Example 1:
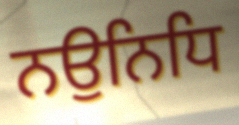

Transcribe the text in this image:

ਨਉਨਿਧਿ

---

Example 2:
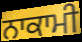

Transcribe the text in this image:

ਨਾਕਾਮੀ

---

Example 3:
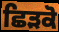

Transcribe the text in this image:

ਛਿੜਕੋ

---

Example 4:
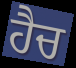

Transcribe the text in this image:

ਹੈਚ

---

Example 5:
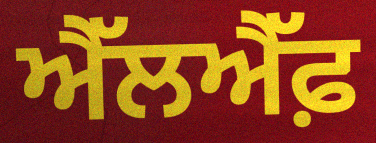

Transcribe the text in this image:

ਐੱਲਐੱਫ਼